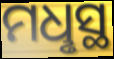
ମଧୢସ୍ଥ